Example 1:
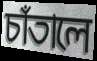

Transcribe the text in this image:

চাঁতালে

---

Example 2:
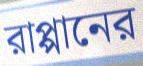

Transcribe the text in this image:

রাপ্পানের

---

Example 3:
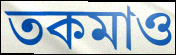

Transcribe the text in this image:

তকমাও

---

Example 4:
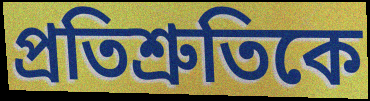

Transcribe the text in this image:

প্রতিশ্রুতিকে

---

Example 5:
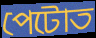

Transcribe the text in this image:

পেটোত